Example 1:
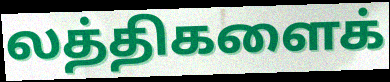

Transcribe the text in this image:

லத்திகளைக்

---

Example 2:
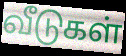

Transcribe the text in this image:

வீடுகள்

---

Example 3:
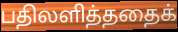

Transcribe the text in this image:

பதிலளித்ததைக்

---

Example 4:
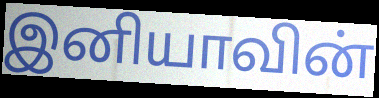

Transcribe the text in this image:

இனியாவின்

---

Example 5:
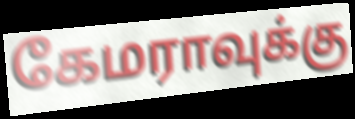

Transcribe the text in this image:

கேமராவுக்கு